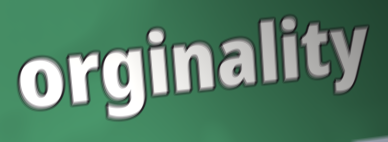
orginality